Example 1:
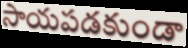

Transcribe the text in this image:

సాయపడకుండా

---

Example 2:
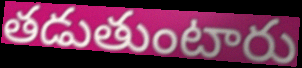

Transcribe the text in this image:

తడుతుంటారు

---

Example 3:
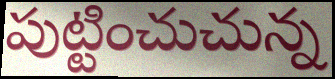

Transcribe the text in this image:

పుట్టించుచున్న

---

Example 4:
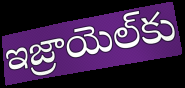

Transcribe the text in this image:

ఇజ్రాయెల్‌కు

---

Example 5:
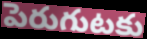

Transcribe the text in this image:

పెరుగుటకు